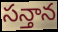
సన్తాన